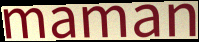
maman